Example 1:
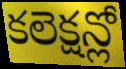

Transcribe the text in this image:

కలెక్షన్లో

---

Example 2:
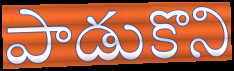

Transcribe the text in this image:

పాడుకొని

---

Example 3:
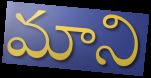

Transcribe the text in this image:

మాని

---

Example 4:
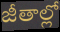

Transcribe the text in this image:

జీతాల్లో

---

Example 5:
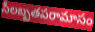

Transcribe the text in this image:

సీలబ్బతపరామాసం